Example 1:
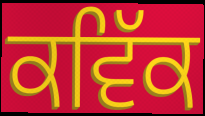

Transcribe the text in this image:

ਕਵਿੱਕ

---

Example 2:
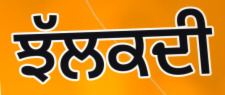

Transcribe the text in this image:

ਝੱਲਕਦੀ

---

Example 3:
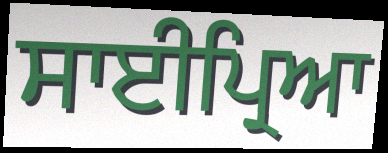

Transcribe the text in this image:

ਸਾਈਪ੍ਰਿਆ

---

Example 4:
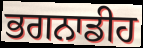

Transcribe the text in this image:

ਭਗਨਾਡੀਹ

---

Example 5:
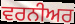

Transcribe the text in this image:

ਵਰਨੀਅਰ